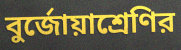
বুর্জোয়াশ্রেণির